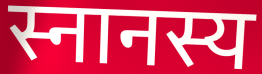
स्नानस्य